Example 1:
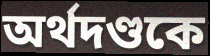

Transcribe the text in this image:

অর্থদণ্ডকে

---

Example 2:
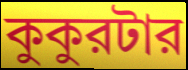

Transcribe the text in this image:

কুকুরটার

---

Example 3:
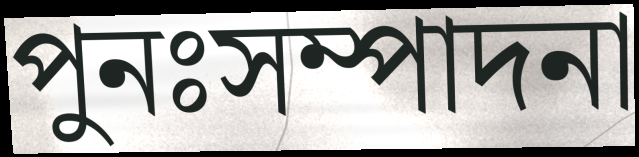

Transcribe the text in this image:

পুনঃসম্পাদনা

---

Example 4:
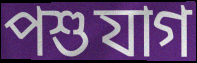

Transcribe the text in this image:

পশুযাগ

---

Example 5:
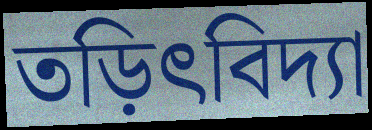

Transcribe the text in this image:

তড়িৎবিদ্যা